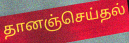
தானஞ்செய்தல்